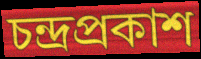
চন্দ্ৰপ্ৰকাশ